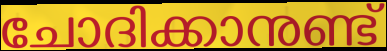
ചോദിക്കാനുണ്ട്